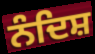
ਨੰਦਿਸ਼